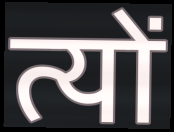
त्यों